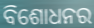
ବିଶୋଧନର